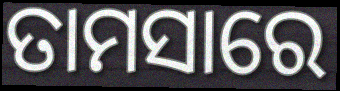
ତାମସାରେ